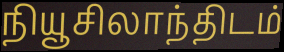
நியூசிலாந்திடம்